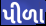
પીળા